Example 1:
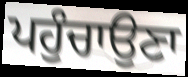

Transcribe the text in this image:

ਪਹੁੰਚਾਉਣਾ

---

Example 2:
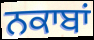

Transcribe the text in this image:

ਨਕਾਬਾਂ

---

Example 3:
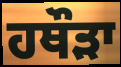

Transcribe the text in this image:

ਹਥੌੜਾ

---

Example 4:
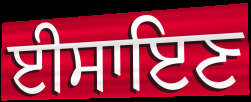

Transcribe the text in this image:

ਈਸਾਇਣ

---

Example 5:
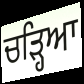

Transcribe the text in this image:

ਚੜ੍ਹਿਆ